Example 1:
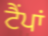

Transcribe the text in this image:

ਟੈਂਪਾਂ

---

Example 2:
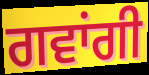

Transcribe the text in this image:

ਗਵਾਂਗੀ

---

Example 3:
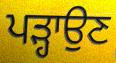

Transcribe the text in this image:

ਪੜ੍ਹਾਉਣ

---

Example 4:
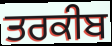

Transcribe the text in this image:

ਤਰਕੀਬ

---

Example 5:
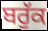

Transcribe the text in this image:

ਬਰੁੱਕ